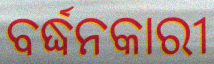
ବର୍ଦ୍ଧନକାରୀ